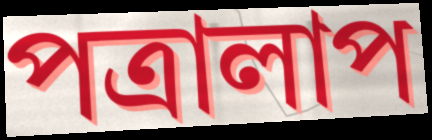
পত্ৰালাপ